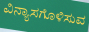
ವಿನ್ಯಾಸಗೊಳಿಸುವ